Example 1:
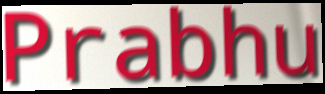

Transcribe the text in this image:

Prabhu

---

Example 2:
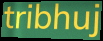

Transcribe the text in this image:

tribhuj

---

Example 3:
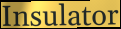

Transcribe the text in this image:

Insulator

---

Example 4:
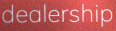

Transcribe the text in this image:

dealership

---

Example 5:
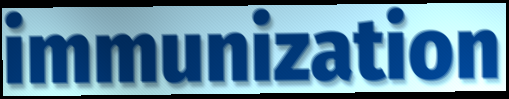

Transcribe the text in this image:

immunization